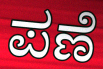
ಪಣೆ